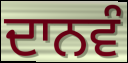
ਦਾਨਵੰ